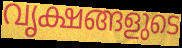
വൃക്ഷങ്ങളുടെ